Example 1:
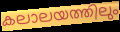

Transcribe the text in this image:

കലാലയത്തിലും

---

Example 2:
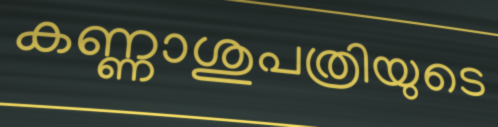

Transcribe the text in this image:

കണ്ണാശുപത്രിയുടെ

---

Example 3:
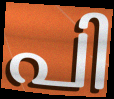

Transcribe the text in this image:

പി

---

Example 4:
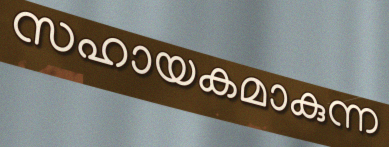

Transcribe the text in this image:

സഹായകമാകുന്ന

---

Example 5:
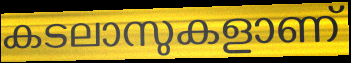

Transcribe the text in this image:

കടലാസുകളാണ്